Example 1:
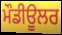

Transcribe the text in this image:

ਮੌਡੀਊਲਰ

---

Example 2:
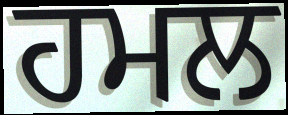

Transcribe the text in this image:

ਹਮਲ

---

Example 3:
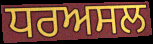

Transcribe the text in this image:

ਧਰਅਸਲ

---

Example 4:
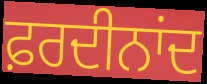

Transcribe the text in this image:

ਫ਼ਰਦੀਨਾਂਦ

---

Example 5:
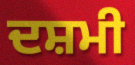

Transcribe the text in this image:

ਦਸ਼ਮੀ